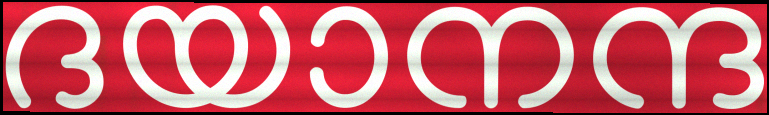
ദയാനന്ദ